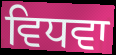
ਵਿਧਵਾ